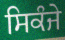
ਸਿਕੰਜੇ